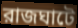
রাজঘাটে